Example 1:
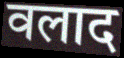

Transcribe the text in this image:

वलाद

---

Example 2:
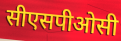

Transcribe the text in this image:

सीएसपीओसी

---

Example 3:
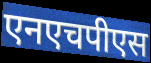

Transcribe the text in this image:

एनएचपीएस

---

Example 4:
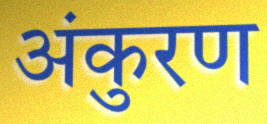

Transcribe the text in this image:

अंकुरण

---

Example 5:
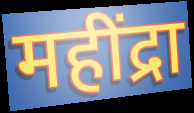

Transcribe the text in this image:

महींद्रा